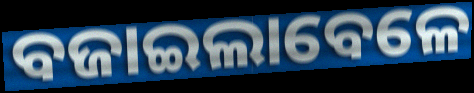
ବଜାଇଲାବେଳେ